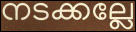
നടക്കല്ലേ